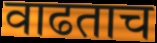
वाढताच